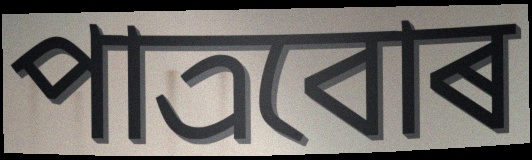
পাত্ৰবোৰ